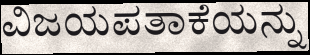
ವಿಜಯಪತಾಕೆಯನ್ನು